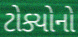
ટોક્યોનો